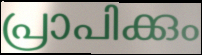
പ്രാപിക്കും